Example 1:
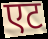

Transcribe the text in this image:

एट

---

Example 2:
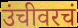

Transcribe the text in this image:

उंचीवरचं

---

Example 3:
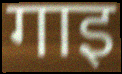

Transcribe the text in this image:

गाइ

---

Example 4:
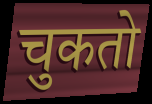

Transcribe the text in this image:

चुकतो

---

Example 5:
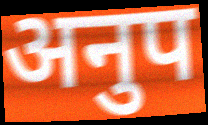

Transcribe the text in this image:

अनुप